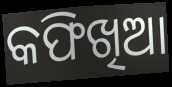
କଫିଖିଆ